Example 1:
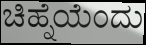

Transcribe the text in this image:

ಚಿಹ್ನೆಯೆಂದು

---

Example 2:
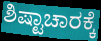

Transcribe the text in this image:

ಶಿಷ್ಟಾಚಾರಕ್ಕೆ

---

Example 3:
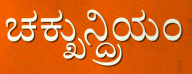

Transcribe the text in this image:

ಚಕ್ಖುನ್ದ್ರಿಯಂ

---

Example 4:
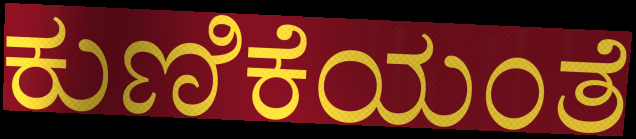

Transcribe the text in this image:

ಕುಣಿಕೆಯಂತೆ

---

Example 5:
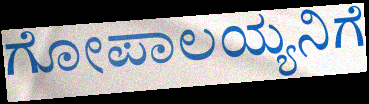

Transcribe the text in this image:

ಗೋಪಾಲಯ್ಯನಿಗೆ